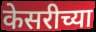
केसरीच्या